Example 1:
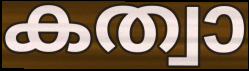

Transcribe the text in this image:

കത്വാ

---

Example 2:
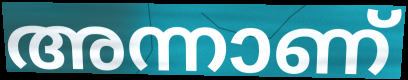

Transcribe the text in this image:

അന്നാണ്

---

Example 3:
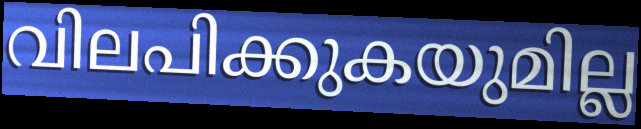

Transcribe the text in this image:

വിലപിക്കുകയുമില്ല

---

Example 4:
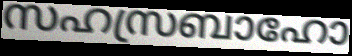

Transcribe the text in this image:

സഹസ്രബാഹോ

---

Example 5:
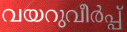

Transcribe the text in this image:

വയറുവീർപ്പ്